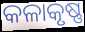
କଳାକୃଷ୍ଣ